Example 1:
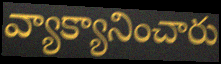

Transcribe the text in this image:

వ్యాక్యానించారు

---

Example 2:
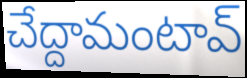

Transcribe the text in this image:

చేద్దామంటావ్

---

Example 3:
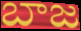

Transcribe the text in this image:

బాజ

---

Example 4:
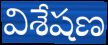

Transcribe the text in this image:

విశేషణ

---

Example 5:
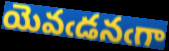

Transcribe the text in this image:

యెవఁడనఁగా